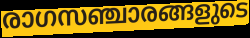
രാഗസഞ്ചാരങ്ങളുടെ